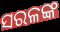
ସରଳଙ୍କ